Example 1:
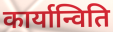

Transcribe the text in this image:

कार्यान्विति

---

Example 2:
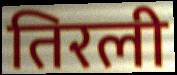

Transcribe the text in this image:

तिरली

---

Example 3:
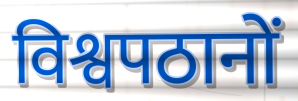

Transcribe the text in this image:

विश्वपठानों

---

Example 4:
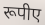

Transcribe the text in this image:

रूपीए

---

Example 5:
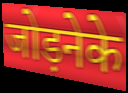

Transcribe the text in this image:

जोड़नेके